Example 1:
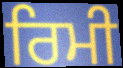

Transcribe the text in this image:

ਰਿਮੀ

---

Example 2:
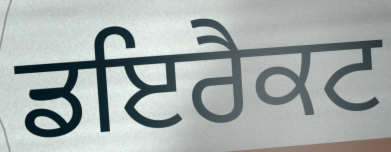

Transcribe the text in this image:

ਡਇਰੈਕਟ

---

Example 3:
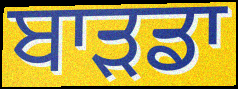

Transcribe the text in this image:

ਬਾੜਡਾ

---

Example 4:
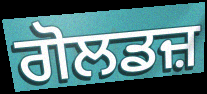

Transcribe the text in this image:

ਗੋਲਡਜ਼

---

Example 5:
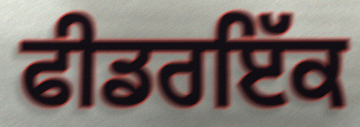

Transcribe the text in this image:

ਫੀਡਰਇੱਕ